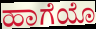
ಹಾಗೆಯೊ